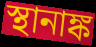
স্থানাঙ্ক